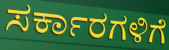
ಸರ್ಕಾರಗಳಿಗೆ